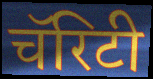
चॅरिटी